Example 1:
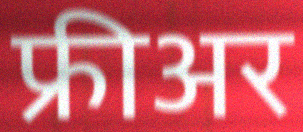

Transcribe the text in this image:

फ्रीअर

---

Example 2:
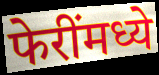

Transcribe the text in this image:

फेरींमध्ये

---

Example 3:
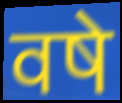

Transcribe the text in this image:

वषे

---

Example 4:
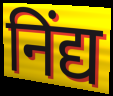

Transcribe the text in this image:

निंद्य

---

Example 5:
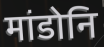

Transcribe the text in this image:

मांडोनि